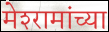
मेश्रामांच्या